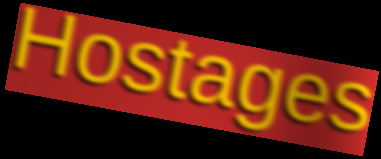
Hostages